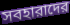
সবহারাদের